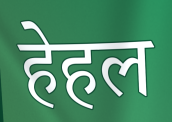
हेहल